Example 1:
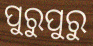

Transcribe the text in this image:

ପୁରୁପୁରୁ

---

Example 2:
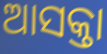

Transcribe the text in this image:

ଆସକ୍ତା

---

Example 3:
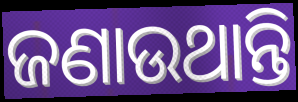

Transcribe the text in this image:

ଜଣାଉଥାନ୍ତି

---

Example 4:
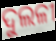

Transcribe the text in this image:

ଦୁଲଳୀ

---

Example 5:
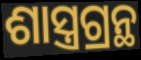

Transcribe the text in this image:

ଶାସ୍ତ୍ରଗ୍ରନ୍ଥ